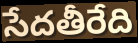
సేదతీరేది